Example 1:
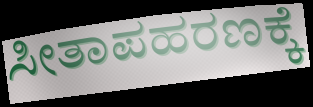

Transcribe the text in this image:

ಸೀತಾಪಹರಣಕ್ಕೆ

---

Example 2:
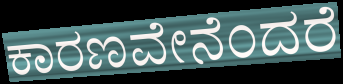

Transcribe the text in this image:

ಕಾರಣವೇನೆಂದರೆ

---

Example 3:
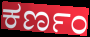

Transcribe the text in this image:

ಕರ್ಣಂ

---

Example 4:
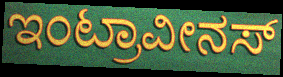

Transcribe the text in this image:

ಇಂಟ್ರಾವೀನಸ್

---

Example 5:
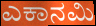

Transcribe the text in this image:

ಎಕಾನಮಿ